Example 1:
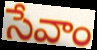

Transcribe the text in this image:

సేవాం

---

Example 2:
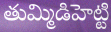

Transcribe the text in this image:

తుమ్మిడిహెట్టి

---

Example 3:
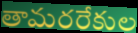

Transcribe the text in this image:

తామరరేకుల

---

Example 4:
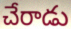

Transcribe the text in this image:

చేరాడు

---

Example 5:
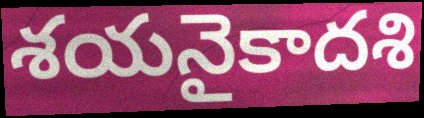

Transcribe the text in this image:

శయనైకాదశి